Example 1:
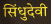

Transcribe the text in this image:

सिंधुदेवी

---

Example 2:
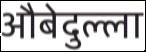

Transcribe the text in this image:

औबेदुल्ला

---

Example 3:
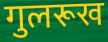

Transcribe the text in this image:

गुलरूख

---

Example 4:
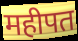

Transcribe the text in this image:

महीपत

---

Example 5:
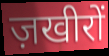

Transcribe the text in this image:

ज़खीरों